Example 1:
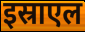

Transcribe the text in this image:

इस्राएल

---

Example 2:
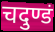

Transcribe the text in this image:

चदुण्डं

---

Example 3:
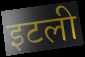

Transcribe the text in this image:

इटली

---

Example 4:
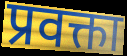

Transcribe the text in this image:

प्रवक्ता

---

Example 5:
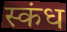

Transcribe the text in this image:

स्कंध